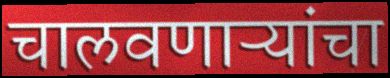
चालवणाऱ्यांचा